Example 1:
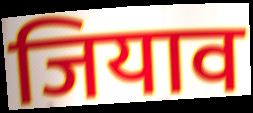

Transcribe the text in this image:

जियाव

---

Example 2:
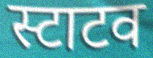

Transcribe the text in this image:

स्टाटव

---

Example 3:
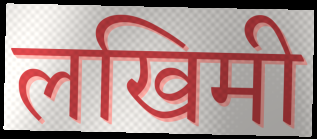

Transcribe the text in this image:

लखिमी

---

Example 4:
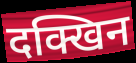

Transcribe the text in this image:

दक्खिन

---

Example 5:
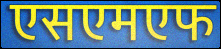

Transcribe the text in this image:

एसएमएफ